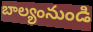
బాల్యంనుండి